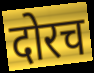
दोरच